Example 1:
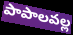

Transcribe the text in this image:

పాపాలవల్ల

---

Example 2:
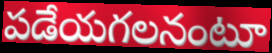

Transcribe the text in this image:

పడేయగలనంటూ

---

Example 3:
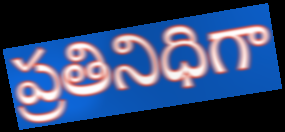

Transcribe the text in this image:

ప్రతినిధిగా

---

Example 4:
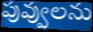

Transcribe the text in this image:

పువ్వులను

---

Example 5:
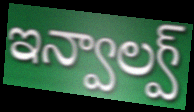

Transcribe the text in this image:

ఇన్వాల్వ్